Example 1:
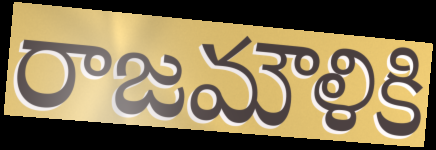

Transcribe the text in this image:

రాజమౌళికి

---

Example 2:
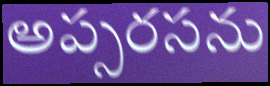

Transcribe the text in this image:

అప్సరసను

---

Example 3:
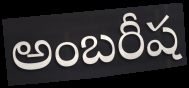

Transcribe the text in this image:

అంబరీష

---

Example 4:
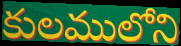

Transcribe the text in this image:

కులములోని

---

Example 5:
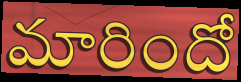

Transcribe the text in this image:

మారిందో